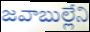
జవాబుల్లేని